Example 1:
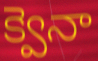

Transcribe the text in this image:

క్వెనా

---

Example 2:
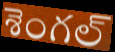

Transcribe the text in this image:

శెంగల్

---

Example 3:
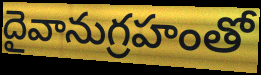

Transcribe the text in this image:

దైవానుగ్రహంతో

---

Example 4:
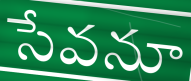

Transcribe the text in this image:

సేవనూ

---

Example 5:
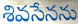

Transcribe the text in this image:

శివసేనను